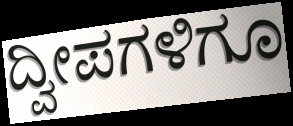
ದ್ವೀಪಗಳಿಗೂ